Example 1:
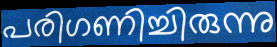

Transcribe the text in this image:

പരിഗണിച്ചിരുന്നു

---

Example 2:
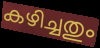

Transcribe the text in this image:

കഴിച്ചതും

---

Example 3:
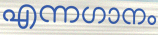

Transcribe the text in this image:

എന്നഗാനം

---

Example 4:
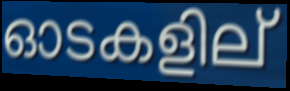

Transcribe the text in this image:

ഓടകളില്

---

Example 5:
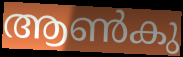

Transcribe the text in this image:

ആൺകു